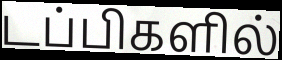
டப்பிகளில்